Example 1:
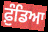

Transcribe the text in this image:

ਫ਼ੁੰਡਿਆ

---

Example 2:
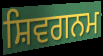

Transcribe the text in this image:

ਸ਼ਿਵਗਨਮ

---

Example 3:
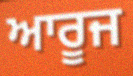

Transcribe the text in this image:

ਆਰੂਜ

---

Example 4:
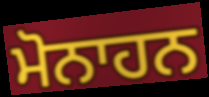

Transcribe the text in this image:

ਮੋਨਾਹਨ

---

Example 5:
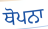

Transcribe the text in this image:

ਥੋਪਨਾ